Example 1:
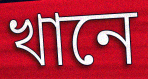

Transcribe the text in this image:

খানে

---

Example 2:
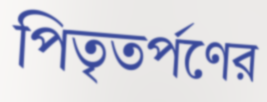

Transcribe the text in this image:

পিতৃতর্পণের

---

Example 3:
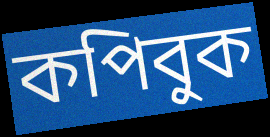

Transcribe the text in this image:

কপিবুক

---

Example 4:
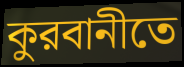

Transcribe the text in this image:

কুরবানীতে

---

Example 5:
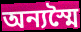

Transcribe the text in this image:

অন্যস্মৈ